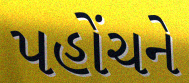
પહોંચને